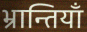
भ्रान्तियाँ